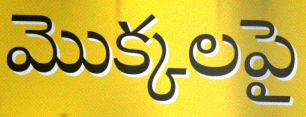
మొక్కలపై